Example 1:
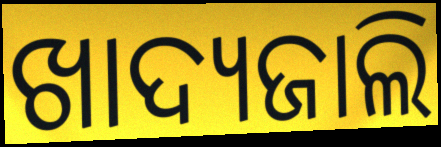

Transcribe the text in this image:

ଖାଦ୍ୟଜାଲି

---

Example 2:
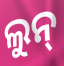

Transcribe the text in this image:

ଲୁନ୍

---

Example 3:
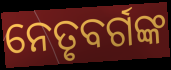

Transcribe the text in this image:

ନେତୃବର୍ଗଙ୍କ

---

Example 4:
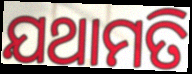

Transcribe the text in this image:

ଯଥାମତି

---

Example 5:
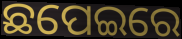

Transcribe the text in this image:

ଛପେଇରେ